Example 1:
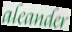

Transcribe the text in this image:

aleander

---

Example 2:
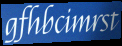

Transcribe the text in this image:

gfhbcimrst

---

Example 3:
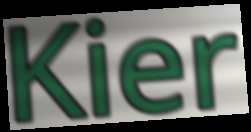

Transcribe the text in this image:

Kier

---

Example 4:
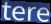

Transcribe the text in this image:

tere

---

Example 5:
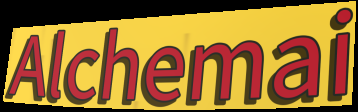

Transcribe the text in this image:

Alchemai